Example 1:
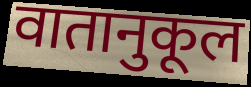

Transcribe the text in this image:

वातानुकूल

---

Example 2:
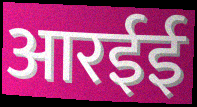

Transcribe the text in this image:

आरईई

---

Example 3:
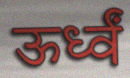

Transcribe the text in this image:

ऊर्ध्वं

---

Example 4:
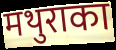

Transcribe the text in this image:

मथुराका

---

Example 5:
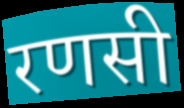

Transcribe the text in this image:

रणसी